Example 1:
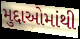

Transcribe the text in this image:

મુદ્દાઓમાંથી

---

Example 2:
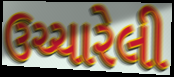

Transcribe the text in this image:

ઉચ્ચારેલી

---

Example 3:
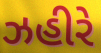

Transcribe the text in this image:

ઝહીરે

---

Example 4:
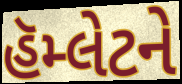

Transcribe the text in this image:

હૅમ્લેટને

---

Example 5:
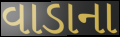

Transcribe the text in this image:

વાડાના